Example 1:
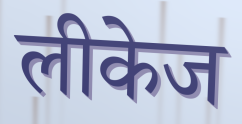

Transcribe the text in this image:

लीकेज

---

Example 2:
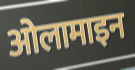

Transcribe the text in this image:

ओलामाइन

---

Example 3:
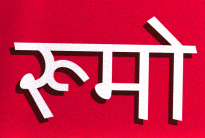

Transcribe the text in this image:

रूमो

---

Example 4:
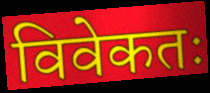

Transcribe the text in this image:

विवेकतः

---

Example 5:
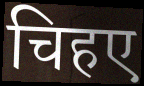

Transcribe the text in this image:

चिहए